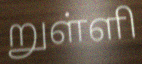
றுள்ளி